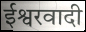
ईश्वरवादी